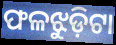
ଫଳଝୁଡ଼ିଟା